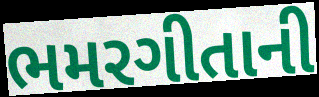
ભમરગીતાની